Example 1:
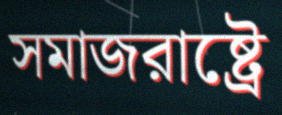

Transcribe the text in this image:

সমাজরাষ্ট্রে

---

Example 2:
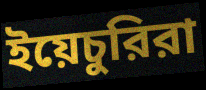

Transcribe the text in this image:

ইয়েচুরিরা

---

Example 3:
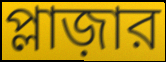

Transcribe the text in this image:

প্লাজ়ার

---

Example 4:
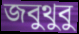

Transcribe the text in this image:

জবুথুবু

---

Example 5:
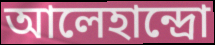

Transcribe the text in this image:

আলেহান্দ্রো